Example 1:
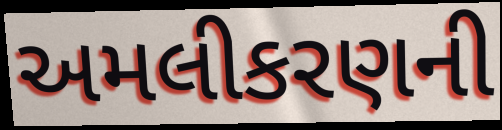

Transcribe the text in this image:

અમલીકરણની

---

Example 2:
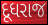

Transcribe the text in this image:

દૂધરાજ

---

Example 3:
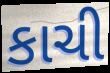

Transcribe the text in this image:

કાચી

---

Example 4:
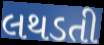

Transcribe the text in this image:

લથડતી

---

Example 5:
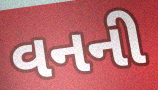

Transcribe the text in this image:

વનની